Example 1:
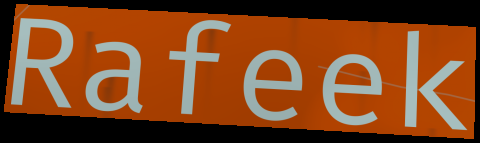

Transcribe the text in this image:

Rafeek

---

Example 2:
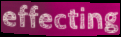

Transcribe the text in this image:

effecting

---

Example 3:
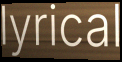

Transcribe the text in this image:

lyrical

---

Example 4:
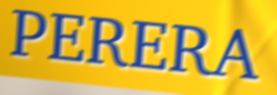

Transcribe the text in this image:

PERERA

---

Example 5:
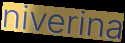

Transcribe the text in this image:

niverina